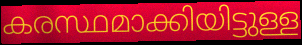
കരസ്ഥമാക്കിയിട്ടുള്ള